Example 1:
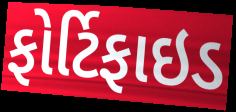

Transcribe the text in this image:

ફોર્ટિફાઇડ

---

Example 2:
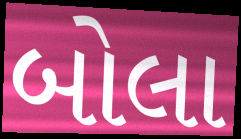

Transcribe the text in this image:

બોલા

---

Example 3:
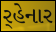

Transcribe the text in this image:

ર્‌હેનાર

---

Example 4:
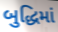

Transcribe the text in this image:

બુદ્ધિમાં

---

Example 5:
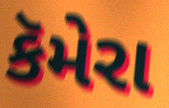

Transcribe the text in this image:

કૅમેરા